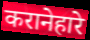
करानेहारे